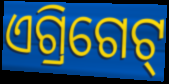
ଏଗ୍ରିଗେଟ୍